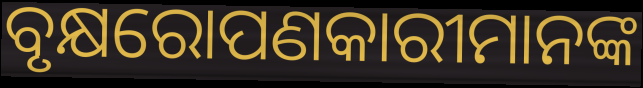
ବୃକ୍ଷରୋପଣକାରୀମାନଙ୍କ